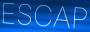
ESCAP